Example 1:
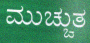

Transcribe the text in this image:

ಮುಚ್ಚುತ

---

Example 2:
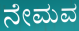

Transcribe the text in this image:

ನೇಮವ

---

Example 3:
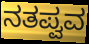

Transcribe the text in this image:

ನತಪ್ವವ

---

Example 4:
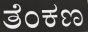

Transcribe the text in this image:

ತೆಂಕಣ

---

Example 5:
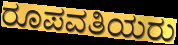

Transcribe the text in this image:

ರೂಪವತಿಯರು